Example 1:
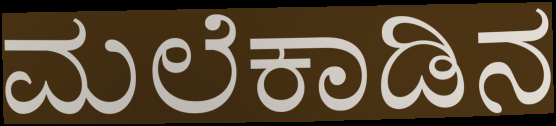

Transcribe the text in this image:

ಮಲೆಕಾಡಿನ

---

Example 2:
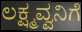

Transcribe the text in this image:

ಲಕ್ಷ್ಮವ್ವನಿಗೆ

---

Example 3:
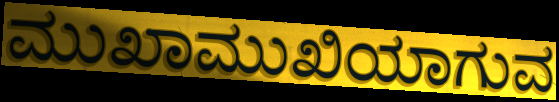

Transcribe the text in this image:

ಮುಖಾಮುಖಿಯಾಗುವ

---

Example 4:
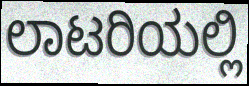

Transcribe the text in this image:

ಲಾಟರಿಯಲ್ಲಿ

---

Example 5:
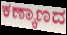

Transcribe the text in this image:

ಕಣ್ಕಾಣದ